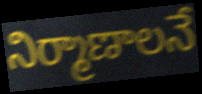
నిర్మాణాలనే